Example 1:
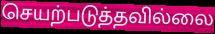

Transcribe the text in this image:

செயற்படுத்தவில்லை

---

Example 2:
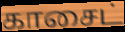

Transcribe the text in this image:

காசைட்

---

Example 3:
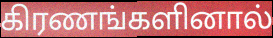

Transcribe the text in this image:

கிரணங்களினால்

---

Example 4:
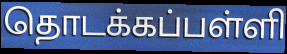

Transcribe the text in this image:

தொடக்கப்பள்ளி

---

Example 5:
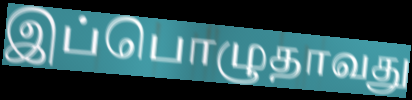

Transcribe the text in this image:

இப்பொழுதாவது